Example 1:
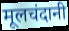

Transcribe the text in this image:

मूलचंदानी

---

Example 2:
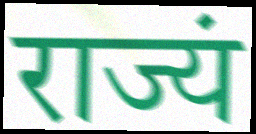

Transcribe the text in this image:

राज्यं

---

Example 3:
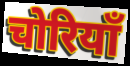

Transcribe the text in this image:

चोरियाँ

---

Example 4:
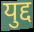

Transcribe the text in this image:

युद्द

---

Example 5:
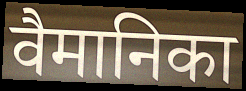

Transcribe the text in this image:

वैमानिका